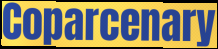
Coparcenary